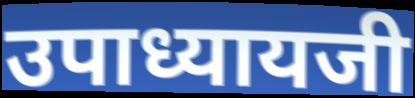
उपाध्यायजी